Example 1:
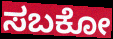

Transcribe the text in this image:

ಸಬಕೋ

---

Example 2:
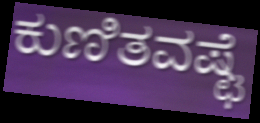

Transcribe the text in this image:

ಕುಣಿತವಷ್ಟೆ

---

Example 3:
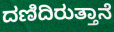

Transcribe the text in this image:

ದಣಿದಿರುತ್ತಾನೆ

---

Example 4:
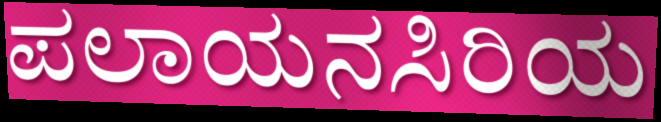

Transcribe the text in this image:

ಪಲಾಯನಸಿರಿಯ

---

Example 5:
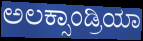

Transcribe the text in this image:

ಅಲಕ್ಸಾಂಡ್ರಿಯಾ